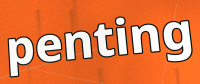
penting